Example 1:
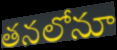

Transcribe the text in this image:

తనలోనూ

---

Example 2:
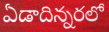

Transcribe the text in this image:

ఏడాదిన్నరలో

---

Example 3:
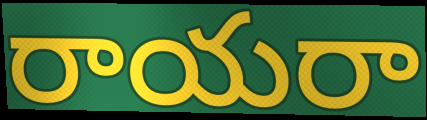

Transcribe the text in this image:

రాయరా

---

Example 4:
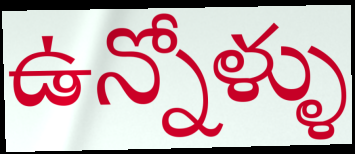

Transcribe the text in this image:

ఉన్నోళ్ళు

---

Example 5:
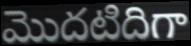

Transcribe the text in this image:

మొదటిదిగా